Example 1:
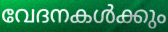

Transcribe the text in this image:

വേദനകൾക്കും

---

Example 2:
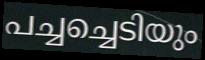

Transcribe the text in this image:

പച്ചച്ചെടിയും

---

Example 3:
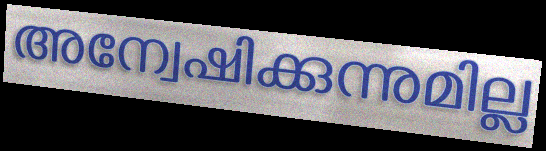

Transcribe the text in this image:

അന്വേഷിക്കുന്നുമില്ല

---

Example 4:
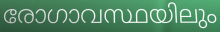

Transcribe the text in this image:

രോഗാവസ്ഥയിലും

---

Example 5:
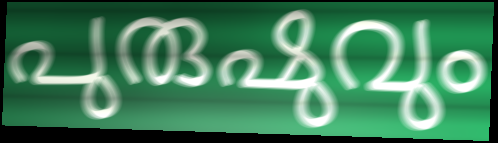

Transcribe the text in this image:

പുരുഷുവും